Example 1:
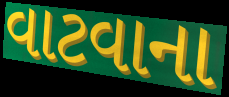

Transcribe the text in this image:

વાટવાના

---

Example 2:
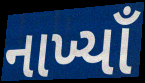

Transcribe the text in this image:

નાખ્યાઁ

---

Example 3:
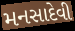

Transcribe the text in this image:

મનસાદેવી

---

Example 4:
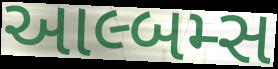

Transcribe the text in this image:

આલ્બમ્સ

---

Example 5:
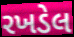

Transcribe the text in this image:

રખડેલ